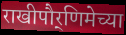
राखीपौर्णिमेच्या